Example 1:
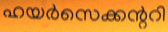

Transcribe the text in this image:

ഹയർസെക്കന്ററി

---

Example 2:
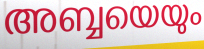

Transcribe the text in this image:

അബ്ബയെയും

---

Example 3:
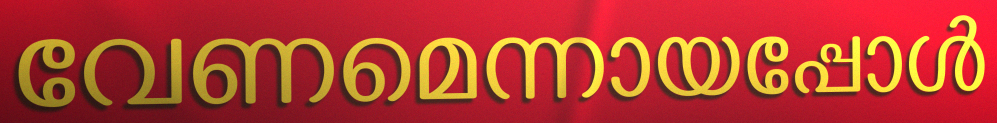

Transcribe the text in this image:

വേണമെന്നായപ്പോൾ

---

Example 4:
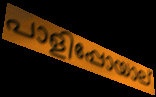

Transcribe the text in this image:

പാളിപ്പോയാല്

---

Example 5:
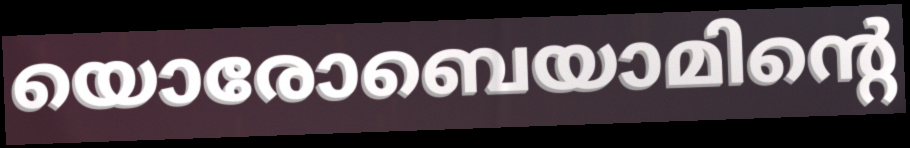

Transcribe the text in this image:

യൊരോബെയാമിന്റെ